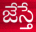
జేస్తే